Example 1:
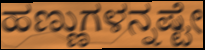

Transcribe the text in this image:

ಹಣ್ಣುಗಳನ್ನಷ್ಟೇ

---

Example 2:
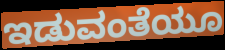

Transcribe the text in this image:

ಇಡುವಂತೆಯೂ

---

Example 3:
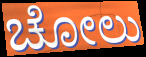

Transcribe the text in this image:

ಚೋಲು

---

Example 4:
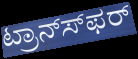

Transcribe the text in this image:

ಟ್ರಾನ್ಸ್‍ಫರ್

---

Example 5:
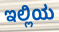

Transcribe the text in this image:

ಇಲ್ಲಿಯ